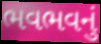
ભવભવનું